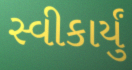
સ્વીકાર્યું